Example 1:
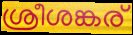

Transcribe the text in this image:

ശ്രീശങ്കര്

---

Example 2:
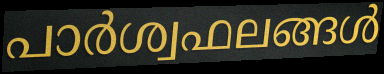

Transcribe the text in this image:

പാർശ്വഫലങ്ങൾ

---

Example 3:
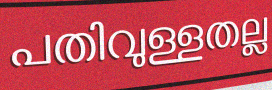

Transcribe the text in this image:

പതിവുള്ളതല്ല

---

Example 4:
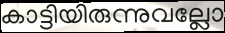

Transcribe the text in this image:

കാട്ടിയിരുന്നുവല്ലോ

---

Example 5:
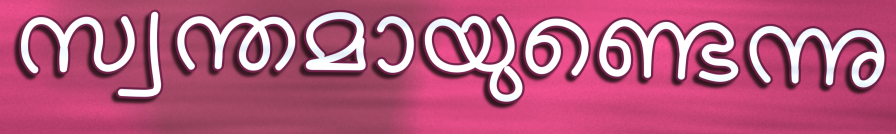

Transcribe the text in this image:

സ്വന്തമായുണ്ടെന്നു